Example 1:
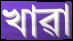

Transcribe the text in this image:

খাৱা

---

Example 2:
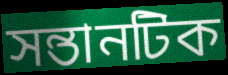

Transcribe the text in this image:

সন্তানটিক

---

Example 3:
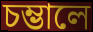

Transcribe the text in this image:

চম্ভালে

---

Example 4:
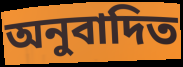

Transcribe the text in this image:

অনুবাদিত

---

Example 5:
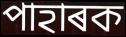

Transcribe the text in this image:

পাহাৰক